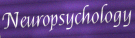
Neuropsychology